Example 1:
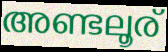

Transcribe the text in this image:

അണ്ടലൂര്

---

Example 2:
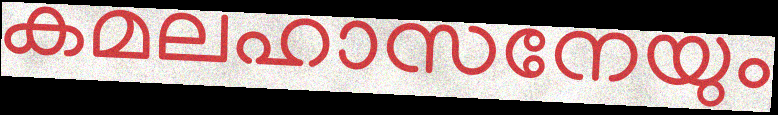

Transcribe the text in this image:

കമലഹാസനേയും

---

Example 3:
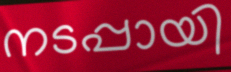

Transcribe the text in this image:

നടപ്പായി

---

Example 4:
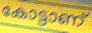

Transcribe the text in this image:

കോട്ടാണ്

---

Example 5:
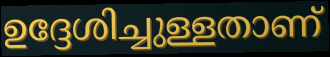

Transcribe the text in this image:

ഉദ്ദേശിച്ചുള്ളതാണ്